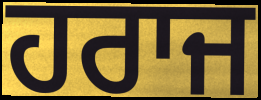
ਹਰਾਜ